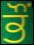
ਭੌਂ